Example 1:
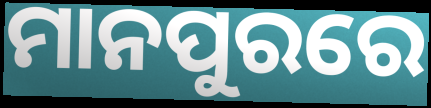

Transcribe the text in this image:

ମାନପୁରରେ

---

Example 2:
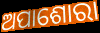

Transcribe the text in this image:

ଅପାଶୋରା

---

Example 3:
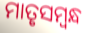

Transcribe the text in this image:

ମାତୃସମ୍ବନ୍ଧ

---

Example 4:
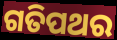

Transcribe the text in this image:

ଗତିପଥର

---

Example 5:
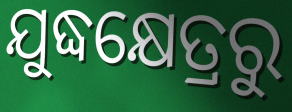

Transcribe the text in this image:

ଯୁଦ୍ଧକ୍ଷେତ୍ରରୁ